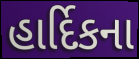
હાર્દિકના